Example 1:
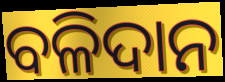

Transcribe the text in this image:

ବଳିଦାନ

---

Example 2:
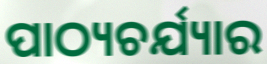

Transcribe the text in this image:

ପାଠ୍ୟଚର୍ଯ୍ୟାର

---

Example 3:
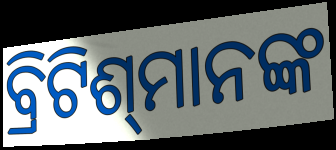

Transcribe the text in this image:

ବ୍ରିଟିଶ୍‌ମାନଙ୍କ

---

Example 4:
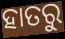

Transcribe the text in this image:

ହାତରୁ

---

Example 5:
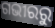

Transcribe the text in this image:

ଗଭୀରରୁ